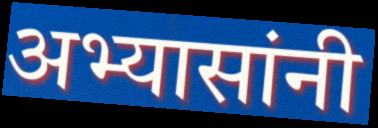
अभ्यासांनी